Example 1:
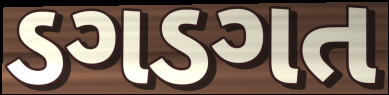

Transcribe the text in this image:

ડગડગત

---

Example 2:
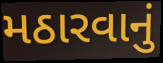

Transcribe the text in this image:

મઠારવાનું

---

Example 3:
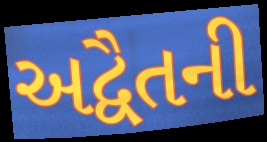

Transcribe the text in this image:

અદ્વૈતની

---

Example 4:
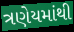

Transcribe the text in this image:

ત્રણેયમાંથી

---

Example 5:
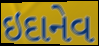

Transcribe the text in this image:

ઇદાનેવ